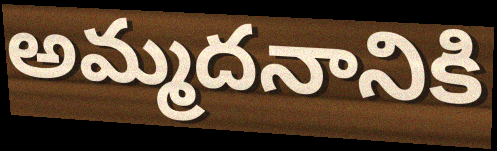
అమ్మదనానికి